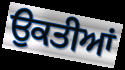
ਉਕਤੀਆਂ